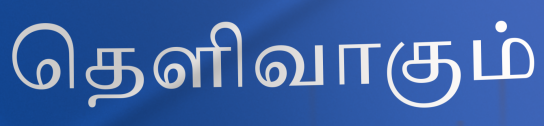
தெளிவாகும்